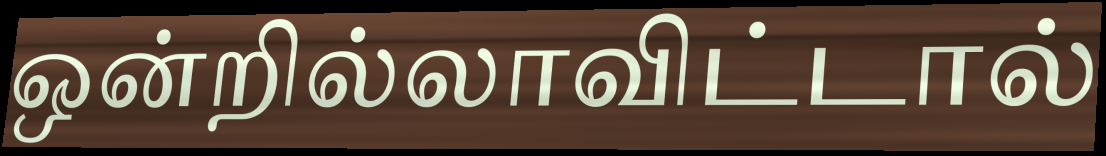
ஒன்றில்லாவிட்டால்